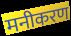
मनीकरण